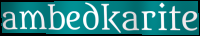
ambedkarite